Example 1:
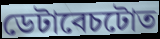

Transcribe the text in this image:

ডেটাবেচটোত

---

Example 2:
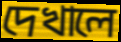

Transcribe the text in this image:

দেখালে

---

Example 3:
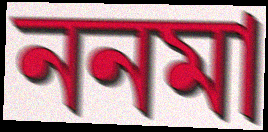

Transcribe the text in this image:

ননমা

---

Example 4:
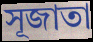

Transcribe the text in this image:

সূজাতা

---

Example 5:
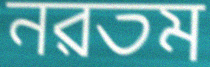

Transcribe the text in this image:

নৱতম